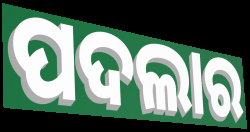
ପଦଲାର